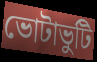
ভোটাভুটি